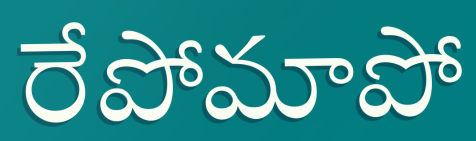
రేపోమాపో